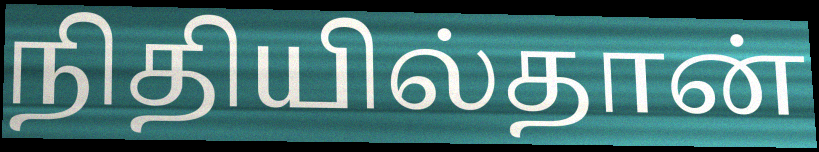
நிதியில்தான்